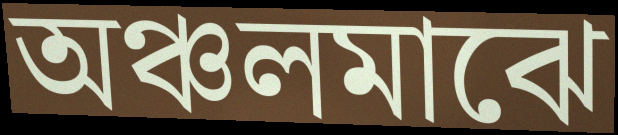
অঞ্চলমাঝে